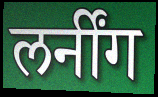
लर्नींग